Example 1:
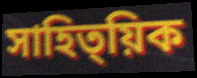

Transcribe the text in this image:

সাহিত্য়িক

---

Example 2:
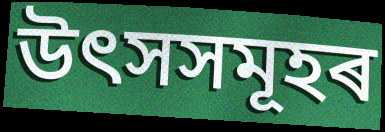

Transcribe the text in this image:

উৎসসমূহৰ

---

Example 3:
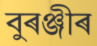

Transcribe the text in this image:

বুৰঞ্জীৰ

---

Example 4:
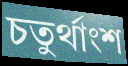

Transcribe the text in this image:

চতুৰ্থাংশ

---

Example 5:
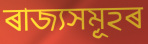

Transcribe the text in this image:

ৰাজ্যসমূহৰ